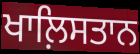
ਖਾਲ਼ਿਸਤਾਨ